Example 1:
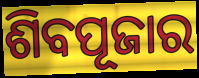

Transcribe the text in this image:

ଶିବପୂଜାର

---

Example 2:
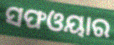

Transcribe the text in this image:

ସଫଓୟାର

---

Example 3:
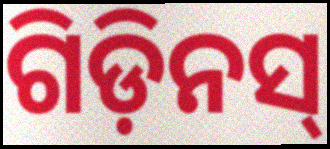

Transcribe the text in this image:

ଗିଡ଼ିନସ୍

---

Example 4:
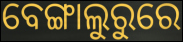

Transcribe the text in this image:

ବେଙ୍ଗାଲୁରୁରେ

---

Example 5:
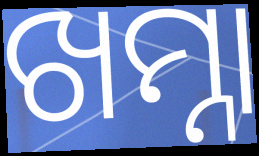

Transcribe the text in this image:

ଖମ୍ନା